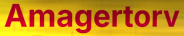
Amagertorv